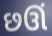
છઊં